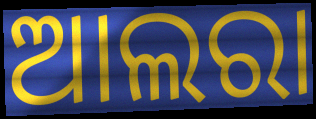
ଆଲରା